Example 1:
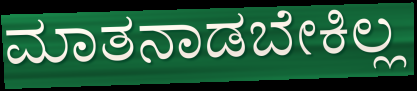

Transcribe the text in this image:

ಮಾತನಾಡಬೇಕಿಲ್ಲ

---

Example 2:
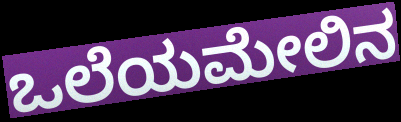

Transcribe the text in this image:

ಒಲೆಯಮೇಲಿನ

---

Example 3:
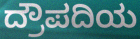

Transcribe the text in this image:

ದ್ರೌಪದಿಯ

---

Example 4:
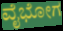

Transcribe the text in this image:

ವೈಭೋಗ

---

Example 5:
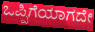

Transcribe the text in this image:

ಒಪ್ಪಿಗೆಯಾಗದೇ